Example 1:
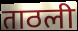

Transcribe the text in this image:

ताठली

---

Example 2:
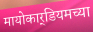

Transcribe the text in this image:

मायोकार्डियमच्या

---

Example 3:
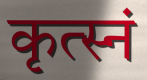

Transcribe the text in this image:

कृत्स्नं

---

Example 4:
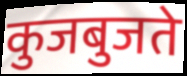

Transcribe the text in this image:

कुजबुजते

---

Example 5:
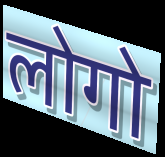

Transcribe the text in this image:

लोगो